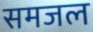
समजल